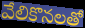
వేలికొనలతో